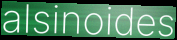
alsinoides